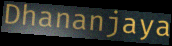
Dhananjaya